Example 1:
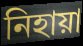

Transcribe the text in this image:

নিহায়া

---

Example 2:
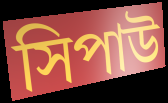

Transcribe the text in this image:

সিপাউ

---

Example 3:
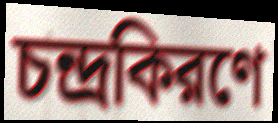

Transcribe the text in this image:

চন্দ্রকিরণে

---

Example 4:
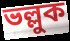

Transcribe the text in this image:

ভল্লুক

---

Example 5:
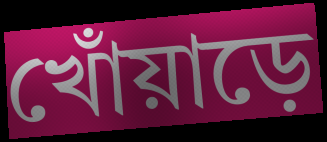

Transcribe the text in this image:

খোঁয়াড়ে